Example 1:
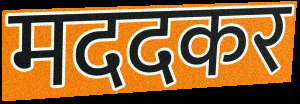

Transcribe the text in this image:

मददकर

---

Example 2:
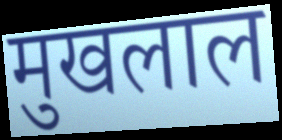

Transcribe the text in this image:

मुखलाल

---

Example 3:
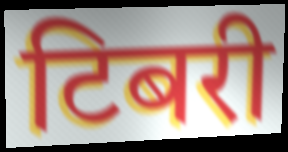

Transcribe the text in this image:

टिबरी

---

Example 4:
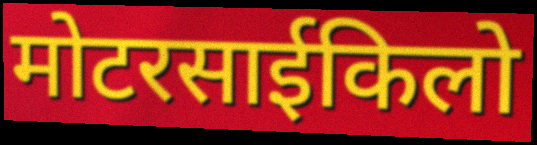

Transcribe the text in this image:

मोटरसाईकिलो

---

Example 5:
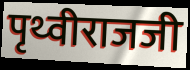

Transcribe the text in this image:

पृथ्वीराजजी